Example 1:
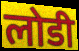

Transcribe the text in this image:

लोडी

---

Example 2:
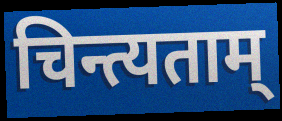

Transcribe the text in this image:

चिन्त्यताम्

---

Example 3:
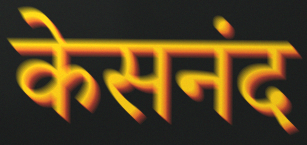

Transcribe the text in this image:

केसनंद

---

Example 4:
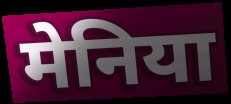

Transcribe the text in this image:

मेनिया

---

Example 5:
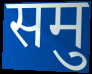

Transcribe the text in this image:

समु